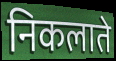
निकलाते